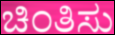
ಚಿಂತಿಸು